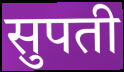
सुपती